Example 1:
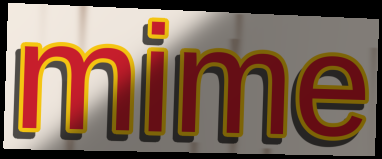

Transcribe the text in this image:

mime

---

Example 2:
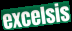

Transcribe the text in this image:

excelsis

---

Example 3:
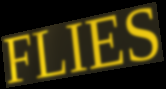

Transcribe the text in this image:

FLIES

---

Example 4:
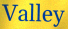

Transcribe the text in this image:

Valley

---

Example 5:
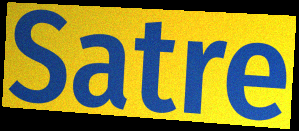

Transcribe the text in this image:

Satre